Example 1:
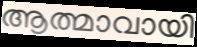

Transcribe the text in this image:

ആത്മാവായി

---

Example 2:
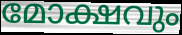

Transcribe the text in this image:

മോക്ഷവും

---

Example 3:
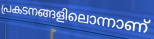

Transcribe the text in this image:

പ്രകടനങ്ങളിലൊന്നാണ്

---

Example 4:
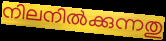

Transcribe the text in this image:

നിലനിൽക്കുന്നതു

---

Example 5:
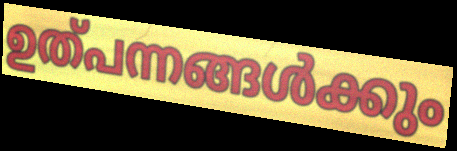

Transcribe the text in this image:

ഉത്പന്നങ്ങൾക്കും